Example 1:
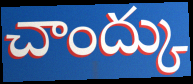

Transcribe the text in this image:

చాంద్కు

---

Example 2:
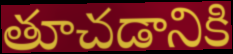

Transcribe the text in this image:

తూచడానికి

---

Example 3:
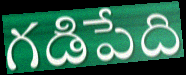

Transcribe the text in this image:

గడిపేది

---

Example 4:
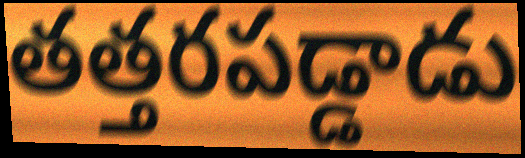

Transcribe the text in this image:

తత్తరపడ్డాడు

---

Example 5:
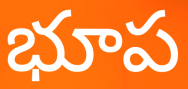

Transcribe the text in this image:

భూప